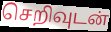
செறிவுடன்